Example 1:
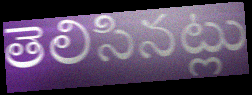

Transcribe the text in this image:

తెలిసినట్లు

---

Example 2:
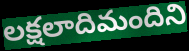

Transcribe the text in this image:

లక్షలాదిమందిని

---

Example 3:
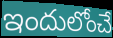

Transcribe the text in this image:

ఇందులోంచే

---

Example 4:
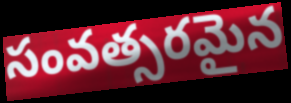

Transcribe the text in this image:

సంవత్సరమైన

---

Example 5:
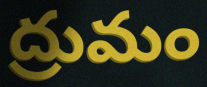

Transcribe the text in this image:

ద్రుమం